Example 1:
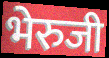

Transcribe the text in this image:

भेरुजी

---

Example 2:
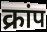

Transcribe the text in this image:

क्रांप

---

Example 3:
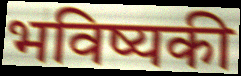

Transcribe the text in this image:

भविष्यकी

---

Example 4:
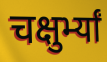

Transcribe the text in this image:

चक्षुर्भ्यां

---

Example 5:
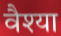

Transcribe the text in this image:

वैश्या